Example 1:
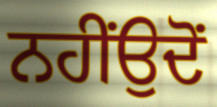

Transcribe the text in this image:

ਨਹੀਂਉਦੋਂ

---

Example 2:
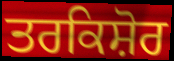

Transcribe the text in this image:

ਤਰਕਿਸ਼ੋਰ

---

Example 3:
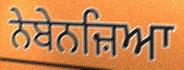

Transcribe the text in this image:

ਨੇਬੇਨਜ਼ਿਆ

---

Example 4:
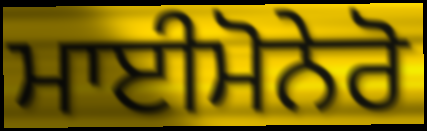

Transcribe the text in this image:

ਮਾਈਮੋਨੇਰੋ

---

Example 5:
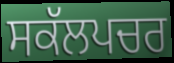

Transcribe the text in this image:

ਸਕੱਲਪਚਰ